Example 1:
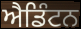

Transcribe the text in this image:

ਐਡਿੰਟਨ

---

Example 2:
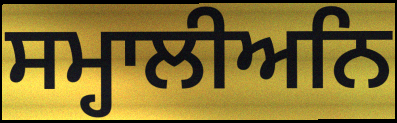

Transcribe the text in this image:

ਸਮ੍ਹਾਲੀਅਨਿ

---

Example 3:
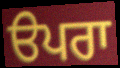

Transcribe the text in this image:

ੳਪਰਾ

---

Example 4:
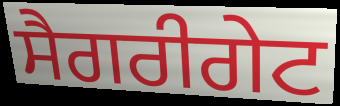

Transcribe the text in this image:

ਸੈਗਰੀਗੇਟ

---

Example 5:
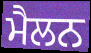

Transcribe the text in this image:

ਮੈਲਨ